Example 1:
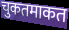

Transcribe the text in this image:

चुकतमाकत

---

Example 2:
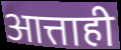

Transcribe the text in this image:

आत्ताही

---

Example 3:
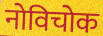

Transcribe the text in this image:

नोविचोक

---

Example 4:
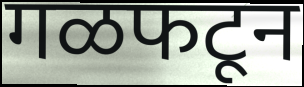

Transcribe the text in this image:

गळफटून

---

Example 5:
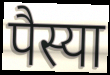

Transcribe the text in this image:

पैस्या